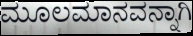
ಮೂಲಮಾನವನ್ನಾಗಿ